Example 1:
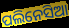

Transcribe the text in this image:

ପଲିନେସିଆ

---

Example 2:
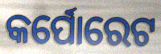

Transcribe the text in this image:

କର୍ପୋରେଟ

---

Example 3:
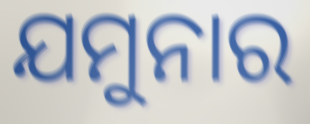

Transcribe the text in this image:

ଯମୁନାର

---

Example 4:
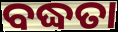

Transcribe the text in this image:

ବଦ୍ଧତା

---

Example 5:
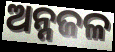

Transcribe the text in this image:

ଅନ୍ନଜଳ